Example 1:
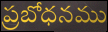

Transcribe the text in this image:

ప్రబోధనము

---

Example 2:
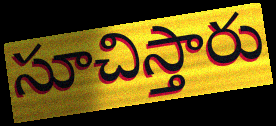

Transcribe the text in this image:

సూచిస్తారు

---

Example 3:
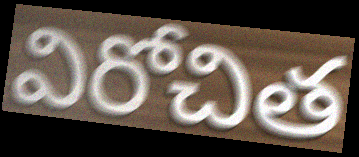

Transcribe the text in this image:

విరోచిత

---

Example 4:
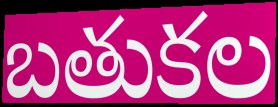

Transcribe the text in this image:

బతుకల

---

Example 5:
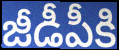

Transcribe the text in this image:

జీడీపీకి